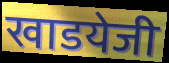
खाडयेजी